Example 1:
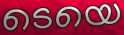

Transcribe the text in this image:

ടെയെ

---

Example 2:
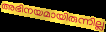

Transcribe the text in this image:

അഭിനയമായിരുന്നില്ല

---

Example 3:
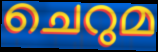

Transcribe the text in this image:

ചെറുമ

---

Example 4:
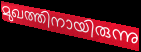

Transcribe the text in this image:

മുഖത്തിനായിരുന്നു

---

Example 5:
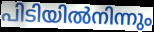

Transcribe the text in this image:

പിടിയിൽനിന്നും